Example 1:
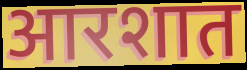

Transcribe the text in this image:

आरशात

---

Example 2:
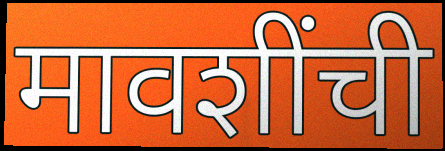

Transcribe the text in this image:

मावशींची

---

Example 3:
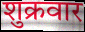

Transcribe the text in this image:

शुक्रवार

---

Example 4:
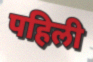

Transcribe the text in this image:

पहिली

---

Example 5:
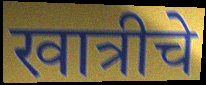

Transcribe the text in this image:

खात्रीचे